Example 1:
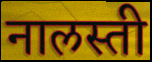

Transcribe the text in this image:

नालस्ती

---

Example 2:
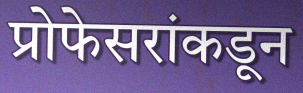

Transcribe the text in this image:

प्रोफेसरांकडून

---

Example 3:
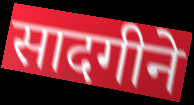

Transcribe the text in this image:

सादगीने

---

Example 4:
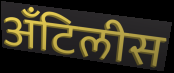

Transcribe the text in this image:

अँटिलीस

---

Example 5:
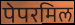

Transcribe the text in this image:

पेपरमिल